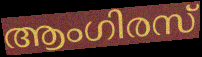
ആംഗിരസ്